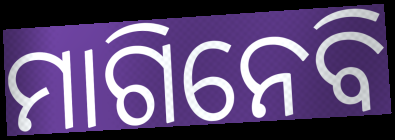
ମାଗିନେବି